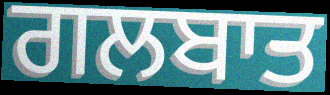
ਗਲਬਾਤ